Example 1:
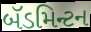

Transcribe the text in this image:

બૅડમિન્ટન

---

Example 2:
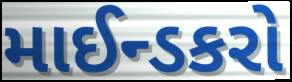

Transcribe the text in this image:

માઈન્ડકરો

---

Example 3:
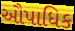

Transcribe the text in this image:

ઔપાધિક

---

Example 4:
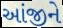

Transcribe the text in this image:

આંજીને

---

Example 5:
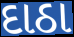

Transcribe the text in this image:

દાઠા